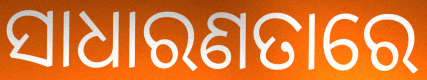
ସାଧାରଣତାରେ